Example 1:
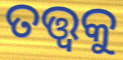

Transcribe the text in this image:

ତତ୍ତ୍ଵକୁ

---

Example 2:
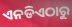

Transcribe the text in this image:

ଏନଡିଏଠାରୁ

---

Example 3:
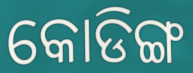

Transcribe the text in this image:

କୋଡିଙ୍ଗ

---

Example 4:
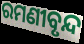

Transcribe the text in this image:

ରମଣୀବୃନ୍ଦ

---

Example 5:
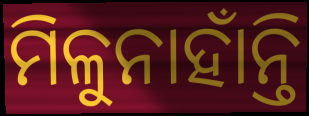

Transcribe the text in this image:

ମିଳୁନାହାଁନ୍ତି